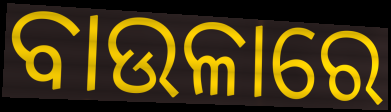
ବାଉଳାରେ